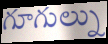
గూగుల్ను